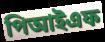
পিআইএফ